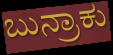
ಬುನ್ರಾಕು